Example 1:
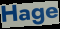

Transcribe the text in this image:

Hage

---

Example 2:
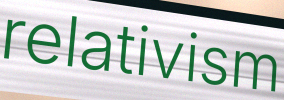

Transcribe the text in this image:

relativism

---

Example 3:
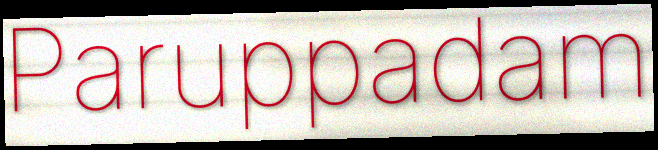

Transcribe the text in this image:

Paruppadam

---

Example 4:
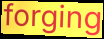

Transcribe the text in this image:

forging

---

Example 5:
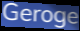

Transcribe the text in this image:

Geroge